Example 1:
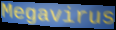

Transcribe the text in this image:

Megavirus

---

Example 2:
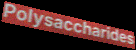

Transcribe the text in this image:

Polysaccharides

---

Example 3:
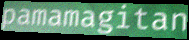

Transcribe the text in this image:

pamamagitan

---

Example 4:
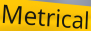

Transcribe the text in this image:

Metrical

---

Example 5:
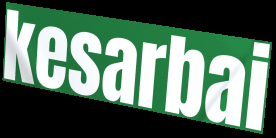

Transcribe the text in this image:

kesarbai